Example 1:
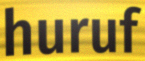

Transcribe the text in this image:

huruf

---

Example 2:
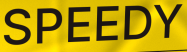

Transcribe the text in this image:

SPEEDY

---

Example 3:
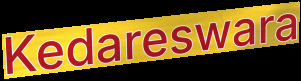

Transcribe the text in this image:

Kedareswara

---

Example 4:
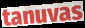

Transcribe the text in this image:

tanuvas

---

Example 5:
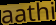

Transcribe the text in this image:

aathi